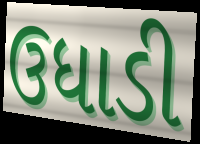
ઉધાડી